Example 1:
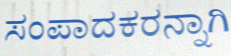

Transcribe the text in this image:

ಸಂಪಾದಕರನ್ನಾಗಿ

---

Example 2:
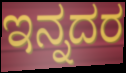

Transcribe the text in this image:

ಇನ್ನದರ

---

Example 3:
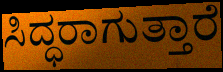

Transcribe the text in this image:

ಸಿದ್ಧರಾಗುತ್ತಾರೆ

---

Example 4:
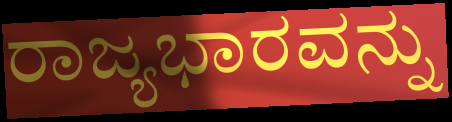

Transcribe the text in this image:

ರಾಜ್ಯಭಾರವನ್ನು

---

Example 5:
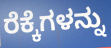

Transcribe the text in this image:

ರೆಕ್ಕೆಗಳನ್ನು